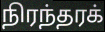
நிரந்தரக்